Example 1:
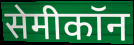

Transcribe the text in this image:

सेमीकॉन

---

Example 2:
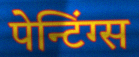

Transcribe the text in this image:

पेन्टिंग्स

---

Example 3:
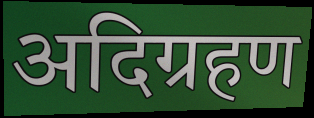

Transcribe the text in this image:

अदिग्रहण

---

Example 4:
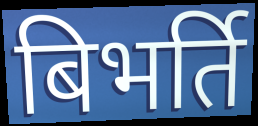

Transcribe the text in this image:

बिभर्ति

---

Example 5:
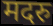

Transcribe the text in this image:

मदरु